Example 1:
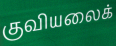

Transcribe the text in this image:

குவியலைக்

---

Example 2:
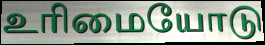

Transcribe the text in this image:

உரிமையோடு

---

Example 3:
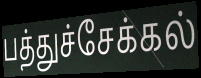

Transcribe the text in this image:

பத்துச்சேக்கல்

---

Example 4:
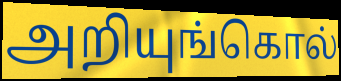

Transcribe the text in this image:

அறியுங்கொல்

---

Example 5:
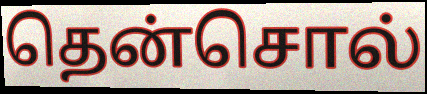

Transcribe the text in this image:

தென்சொல்